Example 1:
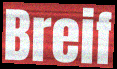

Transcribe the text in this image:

Breif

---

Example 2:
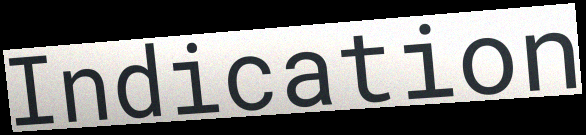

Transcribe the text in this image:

Indication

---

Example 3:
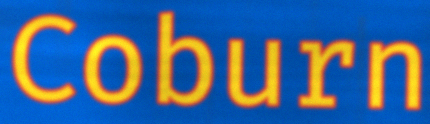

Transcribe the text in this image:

Coburn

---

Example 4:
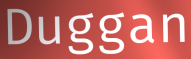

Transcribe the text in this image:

Duggan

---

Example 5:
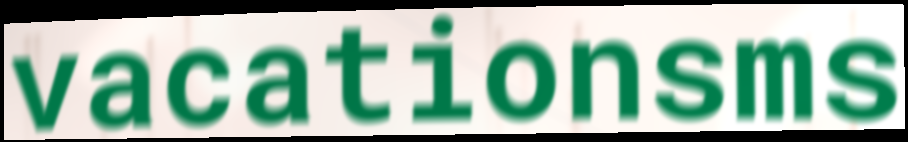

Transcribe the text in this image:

vacationsms